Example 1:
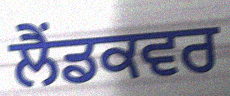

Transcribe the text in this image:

ਲੈਂਡਕਵਰ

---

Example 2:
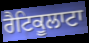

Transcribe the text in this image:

ਰੈਟਿਕੂਲਾਟਾ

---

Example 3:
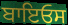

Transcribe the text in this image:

ਬਾਇਓਸ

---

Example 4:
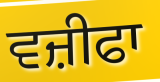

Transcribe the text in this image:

ਵਜ਼ੀਫਾ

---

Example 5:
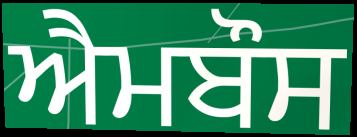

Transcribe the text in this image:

ਐਮਬੌਸ